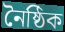
নৈষ্ঠিক